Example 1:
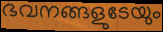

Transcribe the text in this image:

ഭവനങ്ങളുടേയും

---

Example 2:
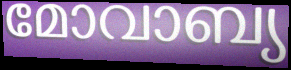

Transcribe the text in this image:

മോവാബ്യ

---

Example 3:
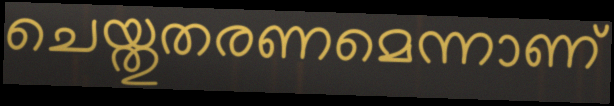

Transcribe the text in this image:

ചെയ്തുതരണമെന്നാണ്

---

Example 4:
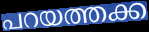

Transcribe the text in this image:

പറയത്തക്ക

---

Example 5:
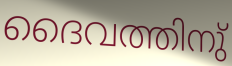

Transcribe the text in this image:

ദൈവത്തിനു്